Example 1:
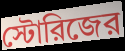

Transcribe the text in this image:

স্টোরিজের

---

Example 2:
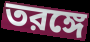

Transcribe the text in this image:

তরঙ্গে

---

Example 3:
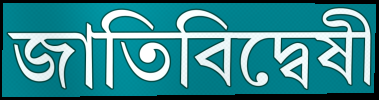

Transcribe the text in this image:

জাতিবিদ্বেষী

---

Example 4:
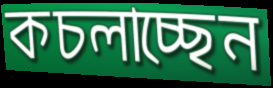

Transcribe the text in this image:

কচলাচ্ছেন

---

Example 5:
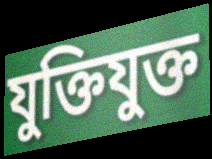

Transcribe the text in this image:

যুক্তিযুক্ত